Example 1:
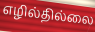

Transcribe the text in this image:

எழில்தில்லை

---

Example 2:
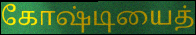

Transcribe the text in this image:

கோஷ்டியைத்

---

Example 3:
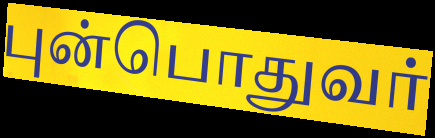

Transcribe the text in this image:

புன்பொதுவர்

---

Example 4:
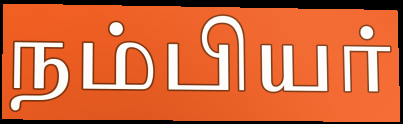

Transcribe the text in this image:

நம்பியர்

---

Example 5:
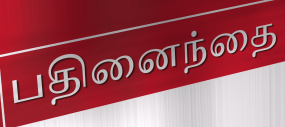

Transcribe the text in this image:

பதினைந்தை